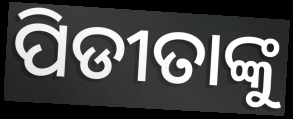
ପିଡୀତାଙ୍କୁ